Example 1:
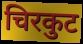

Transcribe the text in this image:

चिरकुट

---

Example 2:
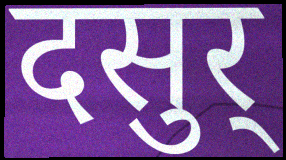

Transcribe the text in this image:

दसुर्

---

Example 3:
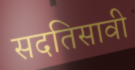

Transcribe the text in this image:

सदतिसावी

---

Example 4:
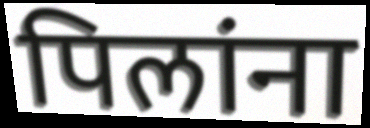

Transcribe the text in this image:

पिलांना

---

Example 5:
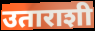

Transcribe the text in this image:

उताराशी